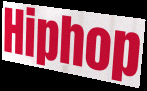
Hiphop